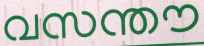
വസന്തൗ